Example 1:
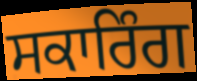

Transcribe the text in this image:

ਸਕਾਰਿੰਗ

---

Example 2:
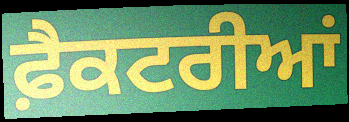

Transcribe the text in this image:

ਫ਼ੈਕਟਰੀਆਂ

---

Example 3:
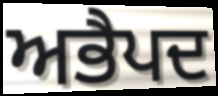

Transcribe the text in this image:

ਅਭੈਪਦ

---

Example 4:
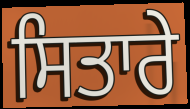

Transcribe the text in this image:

ਸਿਤਾਰੇ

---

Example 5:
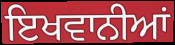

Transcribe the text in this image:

ਇਖਵਾਨੀਆਂ